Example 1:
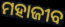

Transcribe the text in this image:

ମହାଜୀବ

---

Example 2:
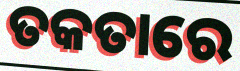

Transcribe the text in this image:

ତକତାରେ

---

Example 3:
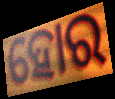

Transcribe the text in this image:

ହୋର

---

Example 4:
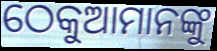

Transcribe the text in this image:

ଠେକୁଆମାନଙ୍କୁ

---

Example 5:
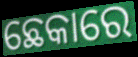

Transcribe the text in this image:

ଛେକାରେ